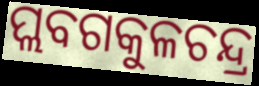
ପ୍ଲବଗକୁଳଚନ୍ଦ୍ର